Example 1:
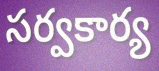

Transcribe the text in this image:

సర్వకార్య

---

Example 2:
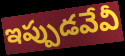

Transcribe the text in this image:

ఇప్పుడవేవీ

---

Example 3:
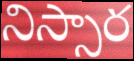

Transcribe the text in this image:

నిస్సార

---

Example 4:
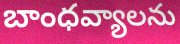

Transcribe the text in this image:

బాంధవ్యాలను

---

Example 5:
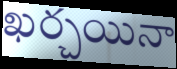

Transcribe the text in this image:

ఖర్చయినా